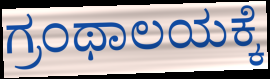
ಗ್ರಂಥಾಲಯಕ್ಕೆ